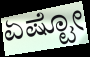
ಏಷ್ಟೋ